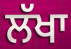
ਲੱਖਾ